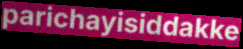
parichayisiddakke